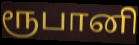
ரூபானி